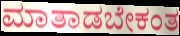
ಮಾತಾಡಬೇಕಂತ